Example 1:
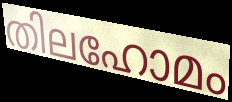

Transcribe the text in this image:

തിലഹോമം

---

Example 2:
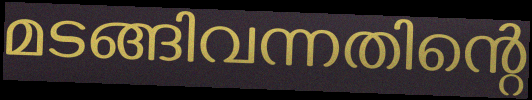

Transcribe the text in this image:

മടങ്ങിവന്നതിന്റെ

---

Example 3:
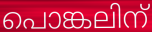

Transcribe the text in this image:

പൊങ്കലിന്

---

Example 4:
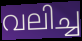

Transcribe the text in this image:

വലിച്ച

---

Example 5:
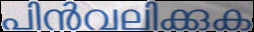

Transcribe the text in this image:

പിൻവലിക്കുക